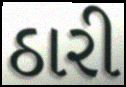
ઠારી